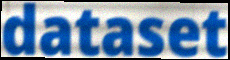
dataset